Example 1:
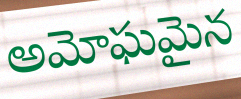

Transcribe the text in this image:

అమోఘమైన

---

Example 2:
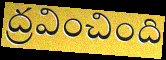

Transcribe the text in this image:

ద్రవించింది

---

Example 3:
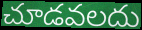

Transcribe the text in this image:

చూడవలదు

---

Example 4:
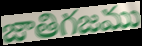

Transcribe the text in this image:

జాతిగజము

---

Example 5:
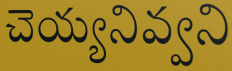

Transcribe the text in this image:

చెయ్యనివ్వని